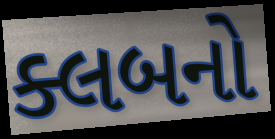
ક્લબનો